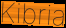
Kibria